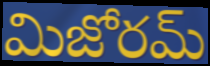
మిజోరమ్